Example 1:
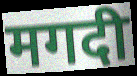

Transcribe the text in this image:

मगदी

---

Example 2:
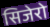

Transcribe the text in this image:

सिजेरो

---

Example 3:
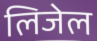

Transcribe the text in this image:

लिजेल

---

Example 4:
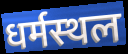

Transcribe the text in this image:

धर्मस्थल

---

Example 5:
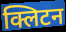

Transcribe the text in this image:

क्लिटन